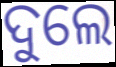
ଦୁଲେ